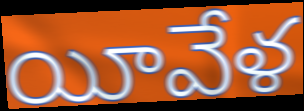
యీవేళ